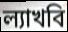
ল্যাখবি